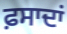
ਫ਼ਸਾਦਾਂ